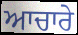
ਆਚਾਰੇ